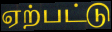
ஏற்பட்டு